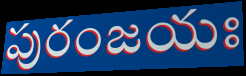
పురంజయః